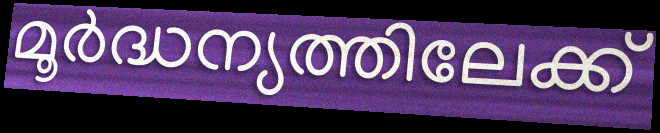
മൂർദ്ധന്യത്തിലേക്ക്